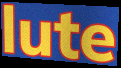
lute